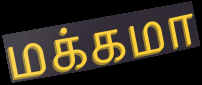
மக்கமா